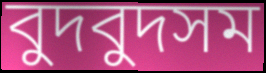
বুদবুদসম